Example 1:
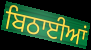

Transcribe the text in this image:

ਬਿਠਾਈਆਂ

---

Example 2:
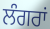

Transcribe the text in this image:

ਲੰਗਰਾਂ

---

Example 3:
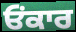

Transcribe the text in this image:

ਓਂਕਾਰ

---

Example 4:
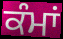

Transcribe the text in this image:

ਕੰਮਾਂ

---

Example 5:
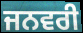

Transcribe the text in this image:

ਜਨਵਰੀ